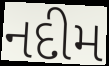
નદીમ